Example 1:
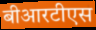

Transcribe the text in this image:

बीआरटीएस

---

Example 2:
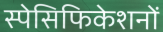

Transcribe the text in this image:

स्पेसिफिकेशनों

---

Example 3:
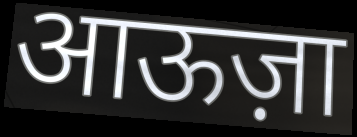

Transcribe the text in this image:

आऊज़ा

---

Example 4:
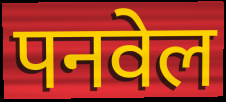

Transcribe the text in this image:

पनवेल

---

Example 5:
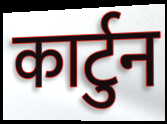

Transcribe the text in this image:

कार्टुन